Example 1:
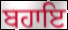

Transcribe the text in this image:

ਬਹਾਇ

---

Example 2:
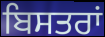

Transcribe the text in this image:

ਬਿਸਤਰਾਂ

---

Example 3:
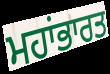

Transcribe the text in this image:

ਮਹਾਂਭਾਰਤ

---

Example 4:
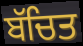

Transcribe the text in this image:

ਬੱਚਿਤ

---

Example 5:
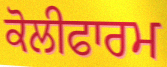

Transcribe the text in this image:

ਕੋਲੀਫਾਰਮ